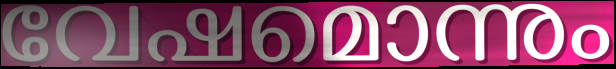
വേഷമൊന്നും